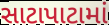
સાટાપાટામાં